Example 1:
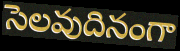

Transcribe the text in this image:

సెలవుదినంగా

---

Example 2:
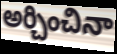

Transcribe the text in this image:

అర్చించినా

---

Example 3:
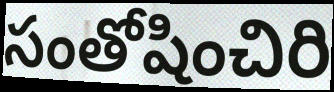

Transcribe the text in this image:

సంతోషించిరి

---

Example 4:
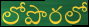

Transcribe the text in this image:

లోపొరలో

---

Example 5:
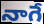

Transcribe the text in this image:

నాగే